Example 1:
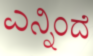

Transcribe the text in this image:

ಎನ್ನಿಂದೆ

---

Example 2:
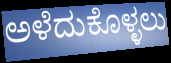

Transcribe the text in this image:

ಅಳೆದುಕೊಳ್ಳಲು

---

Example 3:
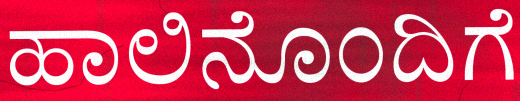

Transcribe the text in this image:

ಹಾಲಿನೊಂದಿಗೆ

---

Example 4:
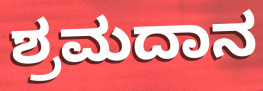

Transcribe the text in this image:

ಶ್ರಮದಾನ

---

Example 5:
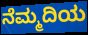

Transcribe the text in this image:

ನೆಮ್ಮದಿಯ